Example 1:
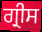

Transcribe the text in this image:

ਗ੍ਰੀਸ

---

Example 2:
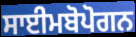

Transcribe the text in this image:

ਸਾਈਮਬੋਪੋਗਨ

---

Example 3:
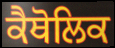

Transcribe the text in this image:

ਕੈਥੋਲਿਕ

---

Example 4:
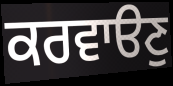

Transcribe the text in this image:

ਕਰਵਾੳਣੁ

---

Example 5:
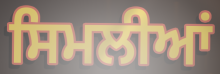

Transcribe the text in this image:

ਸਿਮਲੀਆਂ